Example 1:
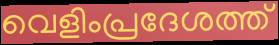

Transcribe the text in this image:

വെളിംപ്രദേശത്ത്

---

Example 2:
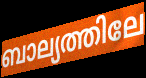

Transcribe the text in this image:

ബാല്യത്തിലേ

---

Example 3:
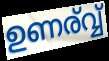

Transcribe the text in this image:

ഉണര്വ്വ്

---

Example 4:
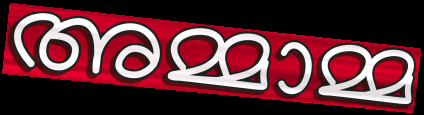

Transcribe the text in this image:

അമ്മാമ്മ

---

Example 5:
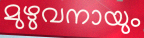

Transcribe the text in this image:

മുഴുവനായും